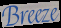
Breeze